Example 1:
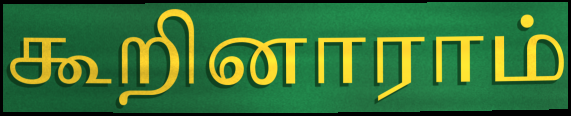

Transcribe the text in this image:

கூறினாராம்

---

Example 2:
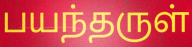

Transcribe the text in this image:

பயந்தருள்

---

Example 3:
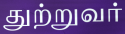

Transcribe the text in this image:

துற்றுவர்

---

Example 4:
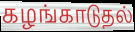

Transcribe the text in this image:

கழங்காடுதல்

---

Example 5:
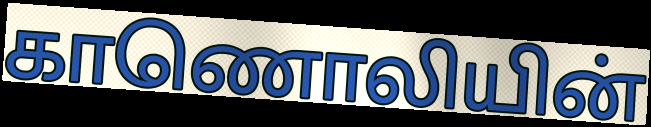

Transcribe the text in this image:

காணொலியின்